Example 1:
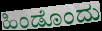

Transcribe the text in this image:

ಹಿಂಡೊಂದು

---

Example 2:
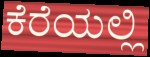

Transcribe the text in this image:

ಕೆರೆಯಲ್ಲಿ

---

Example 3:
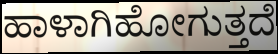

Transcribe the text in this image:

ಹಾಳಾಗಿಹೋಗುತ್ತದೆ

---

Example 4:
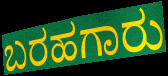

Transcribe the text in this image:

ಬರಹಗಾರು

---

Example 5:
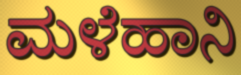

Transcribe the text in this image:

ಮಳೆಹಾನಿ